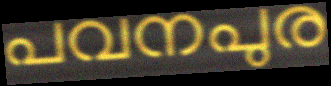
പവനപുര